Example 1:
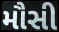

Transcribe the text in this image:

મૌસી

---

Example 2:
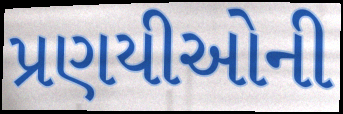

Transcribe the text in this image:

પ્રણયીઓની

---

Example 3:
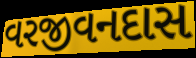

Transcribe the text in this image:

વરજીવનદાસ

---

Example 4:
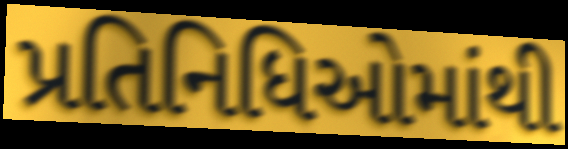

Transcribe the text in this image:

પ્રતિનિધિઓમાંથી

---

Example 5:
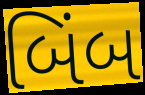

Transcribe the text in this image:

બિંબ